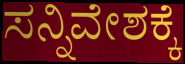
ಸನ್ನಿವೇಶಕ್ಕೆ